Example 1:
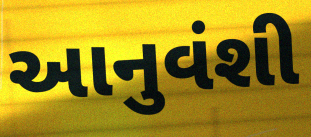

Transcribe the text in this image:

આનુવંશી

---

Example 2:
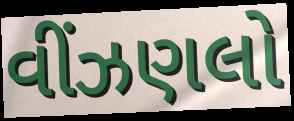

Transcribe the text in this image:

વીંઝણલો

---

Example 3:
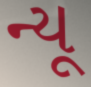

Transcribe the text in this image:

ન્યૂ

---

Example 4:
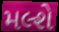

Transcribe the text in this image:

મલ્શે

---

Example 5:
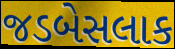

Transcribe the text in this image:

જડબેસલાક